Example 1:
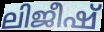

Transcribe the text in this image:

ലിജീഷ്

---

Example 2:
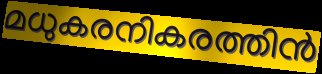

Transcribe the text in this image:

മധുകരനികരത്തിൻ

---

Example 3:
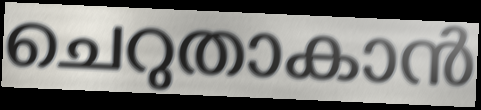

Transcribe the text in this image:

ചെറുതാകാൻ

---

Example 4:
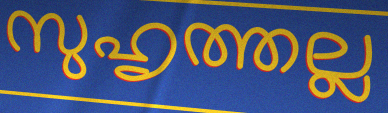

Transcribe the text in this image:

സുഹൃത്തല്ല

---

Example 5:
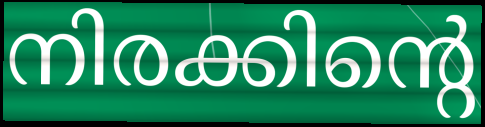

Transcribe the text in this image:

നിരക്കിന്റെ